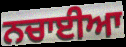
ਨਚਾਈਆ